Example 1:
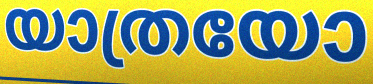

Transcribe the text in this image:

യാത്രയോ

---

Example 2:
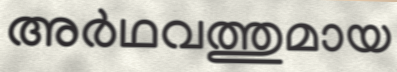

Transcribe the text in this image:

അർഥവത്തുമായ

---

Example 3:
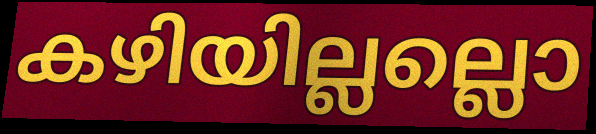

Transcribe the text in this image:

കഴിയില്ലല്ലൊ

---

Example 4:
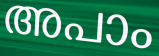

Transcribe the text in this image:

അപാം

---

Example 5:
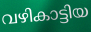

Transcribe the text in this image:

വഴികാട്ടിയ